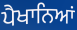
ਪੈਖਾਨਿਆਂ